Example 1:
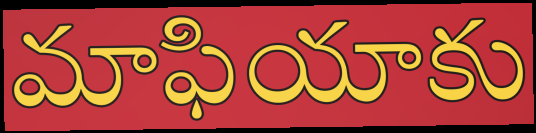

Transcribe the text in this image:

మాఫియాకు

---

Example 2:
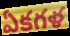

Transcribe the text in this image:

ఏకగళ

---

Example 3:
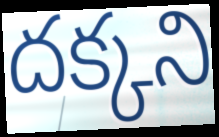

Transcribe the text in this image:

దక్కని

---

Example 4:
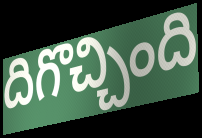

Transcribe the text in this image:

దిగొచ్చింది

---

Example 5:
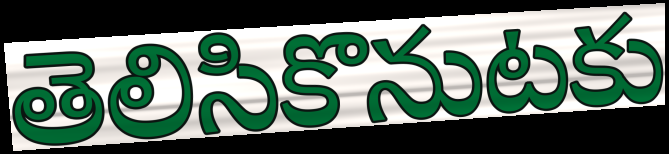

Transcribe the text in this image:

తెలిసికొనుటకు